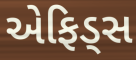
એફિડ્સ